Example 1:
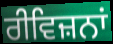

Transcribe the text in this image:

ਰੀਵਿਜ਼ਨਾਂ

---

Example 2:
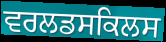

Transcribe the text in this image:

ਵਰਲਡਸਕਿਲਸ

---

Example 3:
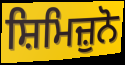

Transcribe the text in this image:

ਸ਼ਿਮਿਜ਼ੁਨੋ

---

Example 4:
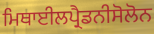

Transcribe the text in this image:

ਮਿਥਾਈਲਪ੍ਰੈਡਨੀਸੋਲੋਨ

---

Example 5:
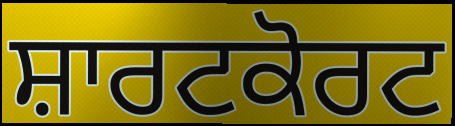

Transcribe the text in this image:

ਸ਼ਾਰਟਕੋਰਟ